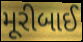
મૂરીબાઈ